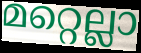
മറ്റെല്ലാ